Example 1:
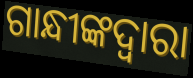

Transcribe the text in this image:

ଗାନ୍ଧୀଙ୍କଦ୍ଵାରା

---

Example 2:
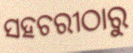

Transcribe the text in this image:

ସହଚରୀଠାରୁ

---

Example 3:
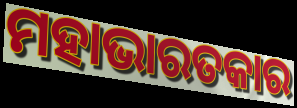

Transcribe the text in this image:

ମହାଭାରତକାର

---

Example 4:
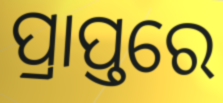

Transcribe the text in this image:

ପ୍ରାପ୍ତରେ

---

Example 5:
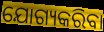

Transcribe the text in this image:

ଯୋଗ୍ୟକରିବା